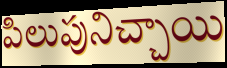
పిలుపునిచ్చాయి